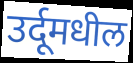
उर्दूमधील